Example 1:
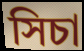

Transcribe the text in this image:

সিচা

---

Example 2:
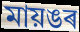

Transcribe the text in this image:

মায়ঙৰ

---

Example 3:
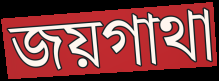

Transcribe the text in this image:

জয়গাথা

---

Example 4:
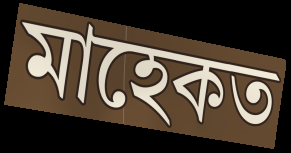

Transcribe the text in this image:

মাহেকত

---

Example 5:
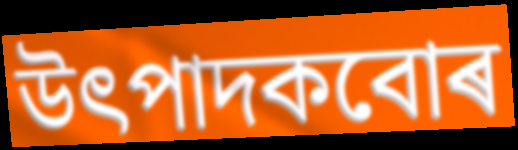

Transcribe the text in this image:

উৎপাদকবোৰ